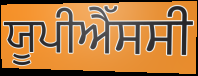
ਯੂਪੀਐੱਸਸੀ